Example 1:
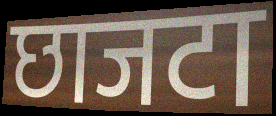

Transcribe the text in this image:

छाजटा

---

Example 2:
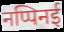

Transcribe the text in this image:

नप्पिनई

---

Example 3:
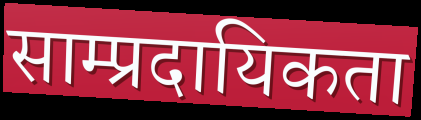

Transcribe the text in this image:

साम्प्रदायिकता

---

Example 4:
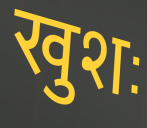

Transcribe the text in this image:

खुशः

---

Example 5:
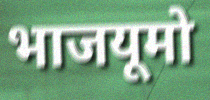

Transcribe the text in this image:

भाजयूमो